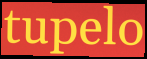
tupelo